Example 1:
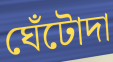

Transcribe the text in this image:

ঘেঁটোদা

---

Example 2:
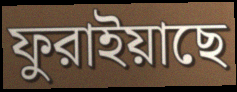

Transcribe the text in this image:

ফুরাইয়াছে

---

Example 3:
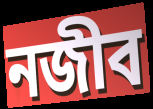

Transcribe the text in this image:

নজীব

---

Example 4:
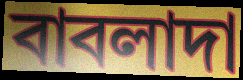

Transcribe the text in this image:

বাবলাদা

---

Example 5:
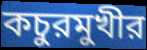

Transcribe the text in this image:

কচুরমুখীর